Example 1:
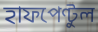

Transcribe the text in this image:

হাফপেণ্টুল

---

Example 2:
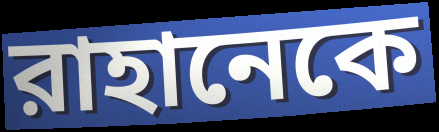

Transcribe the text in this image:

রাহানেকে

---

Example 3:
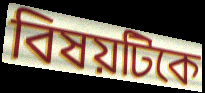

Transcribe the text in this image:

বিষয়টিকে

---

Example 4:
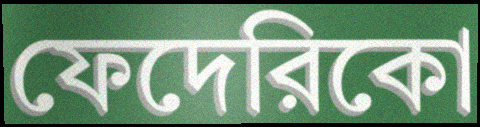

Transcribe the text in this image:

ফেদেরিকো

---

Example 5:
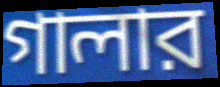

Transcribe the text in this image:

গালার